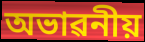
অভাৱনীয়